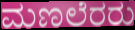
ಮಣಲೆರರು